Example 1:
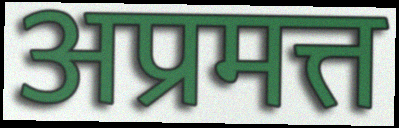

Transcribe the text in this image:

अप्रमत्त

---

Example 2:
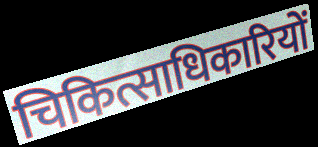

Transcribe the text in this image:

चिकित्साधिकारियों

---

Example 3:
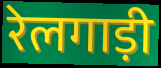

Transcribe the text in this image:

रेलगाड़ी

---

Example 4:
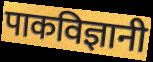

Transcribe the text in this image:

पाकविज्ञानी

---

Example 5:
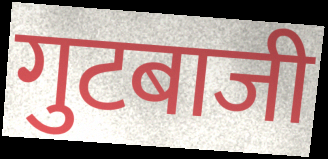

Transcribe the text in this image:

गुटबाजी